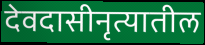
देवदासीनृत्यातील